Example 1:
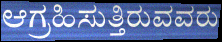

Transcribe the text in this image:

ಆಗ್ರಹಿಸುತ್ತಿರುವವರು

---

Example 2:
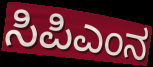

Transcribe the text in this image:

ಸಿಪಿಎಂನ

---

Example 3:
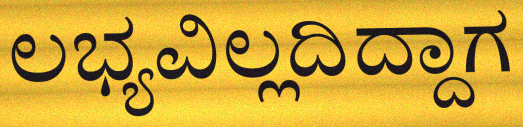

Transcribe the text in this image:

ಲಭ್ಯವಿಲ್ಲದಿದ್ದಾಗ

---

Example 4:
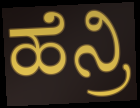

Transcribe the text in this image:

ಹೆನ್ರಿ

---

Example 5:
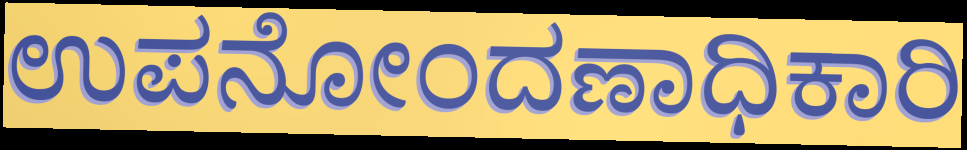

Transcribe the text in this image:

ಉಪನೋಂದಣಾಧಿಕಾರಿ